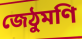
জেঠুমণি